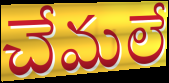
చేమలే